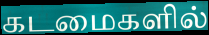
கடமைகளில்